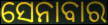
ସେନାବାର